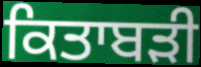
ਕਿਤਾਬੜੀ